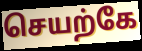
செயற்கே